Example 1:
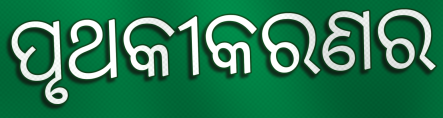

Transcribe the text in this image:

ପୃଥକୀକରଣର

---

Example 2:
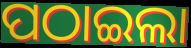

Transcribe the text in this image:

ପଠାଇଲା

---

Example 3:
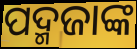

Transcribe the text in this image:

ପଦ୍ମଜାଙ୍କ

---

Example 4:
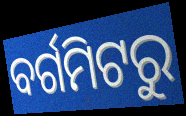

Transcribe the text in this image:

ବର୍ଗମିଟରୁ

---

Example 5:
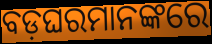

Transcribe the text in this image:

ବଡ଼ଘରମାନଙ୍କରେ